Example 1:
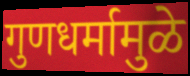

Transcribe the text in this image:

गुणधर्मामुळे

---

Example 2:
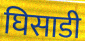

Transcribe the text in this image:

घिसाडी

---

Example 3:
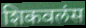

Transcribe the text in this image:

शिकवलंस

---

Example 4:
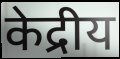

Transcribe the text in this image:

केद्रीय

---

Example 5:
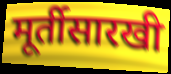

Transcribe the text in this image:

मूर्तीसारखी